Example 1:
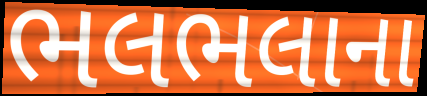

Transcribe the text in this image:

ભલભલાના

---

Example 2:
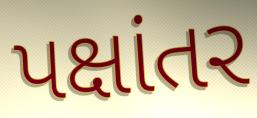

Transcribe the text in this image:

પક્ષાંતર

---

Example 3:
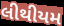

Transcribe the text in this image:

લીથીયમ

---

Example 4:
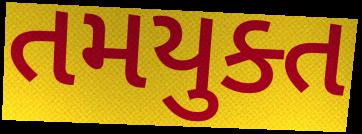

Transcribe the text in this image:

તમયુક્ત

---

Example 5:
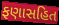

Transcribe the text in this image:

ફણાસહિત